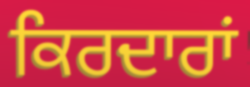
ਕਿਰਦਾਰਾਂ